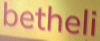
betheli